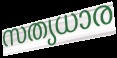
സത്യധാര